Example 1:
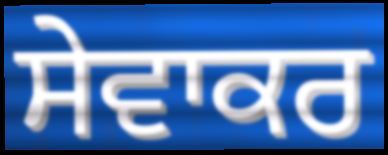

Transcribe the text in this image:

ਸੇਵਾਕਰ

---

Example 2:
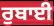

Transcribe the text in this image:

ਰੁਬਾਈ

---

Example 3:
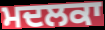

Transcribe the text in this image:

ਮਦਲਕਾ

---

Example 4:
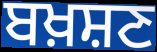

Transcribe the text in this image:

ਬਖ਼ਸ਼ਣ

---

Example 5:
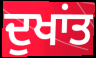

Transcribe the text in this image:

ਦੁਖਾਂਤ